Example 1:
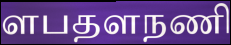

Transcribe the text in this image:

ளபதளநணி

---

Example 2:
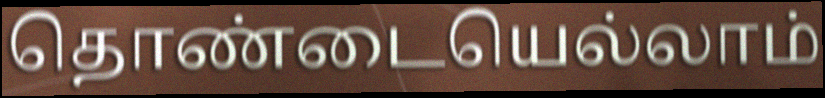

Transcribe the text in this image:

தொண்டையெல்லாம்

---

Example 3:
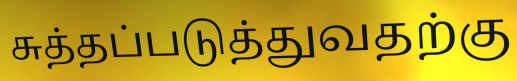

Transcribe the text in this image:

சுத்தப்படுத்துவதற்கு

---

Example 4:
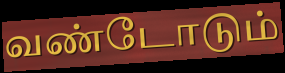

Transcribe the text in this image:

வண்டோடும்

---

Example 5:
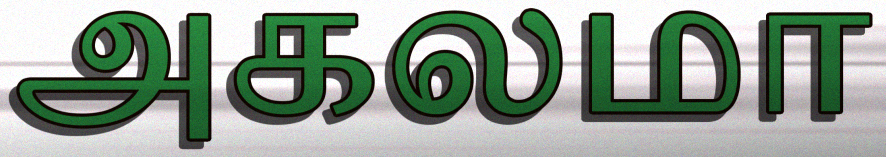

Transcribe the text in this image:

அகலமா